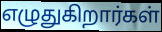
எழுதுகிறார்கள்